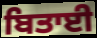
ਬਿਤਾਈ